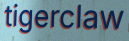
tigerclaw